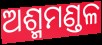
ଅଶ୍ମମଣ୍ଡଳ